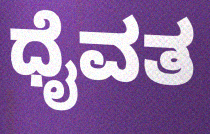
ಧೈವತ